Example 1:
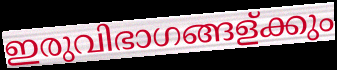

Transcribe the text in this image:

ഇരുവിഭാഗങ്ങള്ക്കും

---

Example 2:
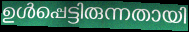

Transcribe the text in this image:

ഉൾപ്പെട്ടിരുന്നതായി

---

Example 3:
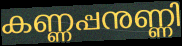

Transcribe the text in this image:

കണ്ണപ്പനുണ്ണി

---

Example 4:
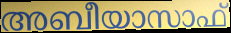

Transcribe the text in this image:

അബീയാസാഫ്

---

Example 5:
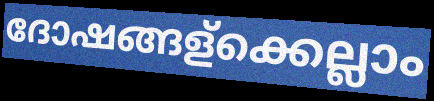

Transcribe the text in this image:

ദോഷങ്ങള്ക്കെല്ലാം